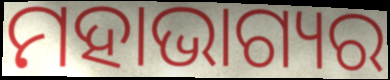
ମହାଭାଗ୍ୟର